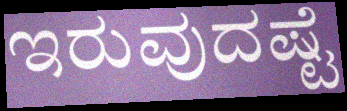
ಇರುವುದಷ್ಟೆ